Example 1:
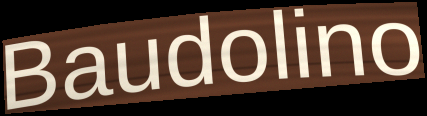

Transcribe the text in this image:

Baudolino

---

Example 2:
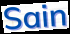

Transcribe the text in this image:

Sain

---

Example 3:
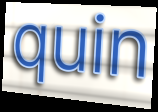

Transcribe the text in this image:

quin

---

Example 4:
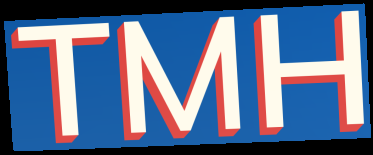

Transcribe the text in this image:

TMH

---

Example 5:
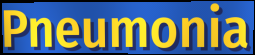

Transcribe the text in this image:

Pneumonia